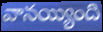
వానయ్యింది